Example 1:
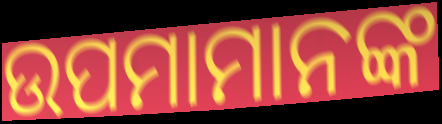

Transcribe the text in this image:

ଉପମାମାନଙ୍କ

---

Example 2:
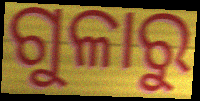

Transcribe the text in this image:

ଗୁଳାରୁ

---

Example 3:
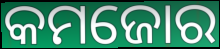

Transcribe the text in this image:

କମଜୋର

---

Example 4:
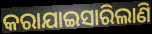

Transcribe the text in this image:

କରାଯାଇସାରିଲାଣି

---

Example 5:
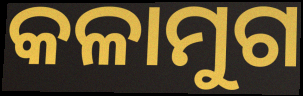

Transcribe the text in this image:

କଳାମୁଗ